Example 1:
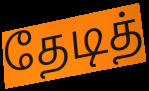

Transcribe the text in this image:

தேடித்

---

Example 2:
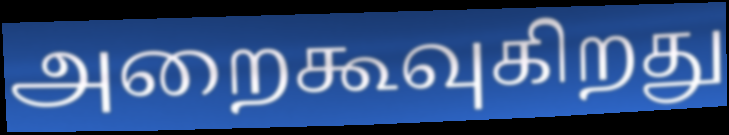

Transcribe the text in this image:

அறைகூவுகிறது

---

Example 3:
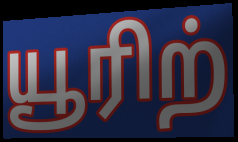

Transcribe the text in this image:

யூரிற்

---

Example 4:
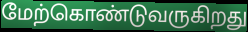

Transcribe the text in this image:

மேற்கொண்டுவருகிறது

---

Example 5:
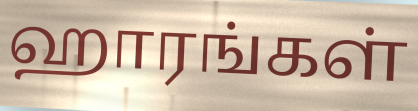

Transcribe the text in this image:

ஹாரங்கள்